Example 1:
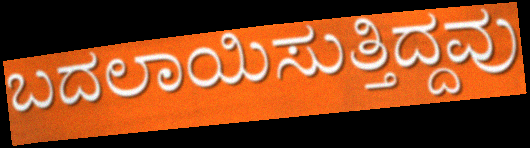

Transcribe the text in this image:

ಬದಲಾಯಿಸುತ್ತಿದ್ದವು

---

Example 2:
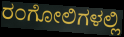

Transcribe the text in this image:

ರಂಗೋಲಿಗಳಲ್ಲಿ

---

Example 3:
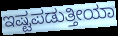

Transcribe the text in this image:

ಇಷ್ಟಪಡುತ್ತೀಯಾ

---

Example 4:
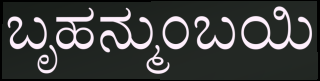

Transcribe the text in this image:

ಬೃಹನ್ಮುಂಬಯಿ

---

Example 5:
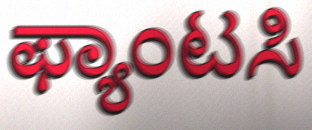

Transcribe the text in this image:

ಫ್ಯಾಂಟಸಿ